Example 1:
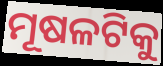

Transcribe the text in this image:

ମୂଷଳଟିକୁ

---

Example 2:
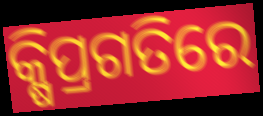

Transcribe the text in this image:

କ୍ଷିପ୍ରଗତିରେ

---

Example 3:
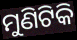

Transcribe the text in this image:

ମୁଣିଟିକି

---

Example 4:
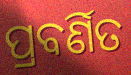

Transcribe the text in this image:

ପ୍ରବର୍ଣିତ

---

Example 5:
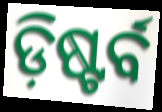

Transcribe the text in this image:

ଡ଼ିଷ୍ଟର୍ବ